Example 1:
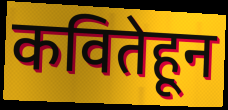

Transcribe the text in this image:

कवितेहून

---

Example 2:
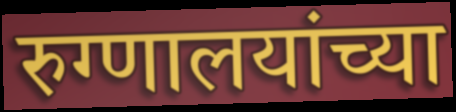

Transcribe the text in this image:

रुग्णालयांच्या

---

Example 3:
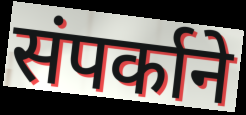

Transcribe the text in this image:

संपर्काने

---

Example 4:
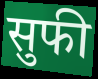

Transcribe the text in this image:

सुफी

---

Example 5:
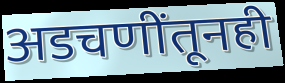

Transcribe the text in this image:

अडचणींतूनही